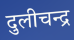
दुलीचन्द्र